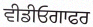
ਵੀਡੀਓਗਾਫਰ